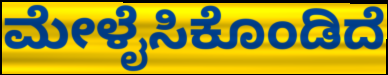
ಮೇಳೈಸಿಕೊಂಡಿದೆ